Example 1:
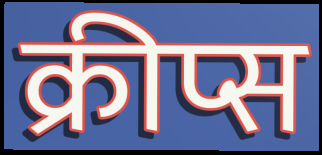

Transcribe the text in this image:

क्रीप्स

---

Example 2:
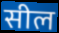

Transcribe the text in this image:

सील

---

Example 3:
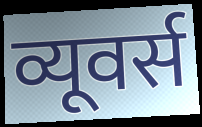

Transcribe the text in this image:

व्यूवर्स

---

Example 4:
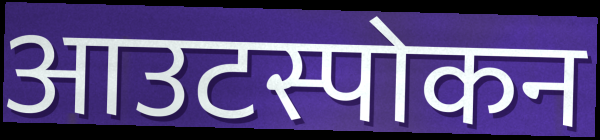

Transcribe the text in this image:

आउटस्पोकन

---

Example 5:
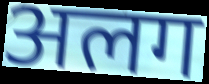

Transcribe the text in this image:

अलग